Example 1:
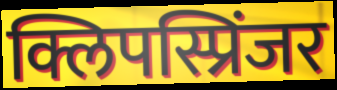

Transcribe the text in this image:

क्लिपस्प्रिंजर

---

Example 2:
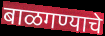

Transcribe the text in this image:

बाळगण्याचे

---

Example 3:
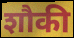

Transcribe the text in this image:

शौकी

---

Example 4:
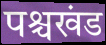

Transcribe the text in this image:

पश्चखंड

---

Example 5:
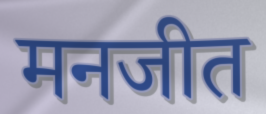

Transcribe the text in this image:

मनजीत